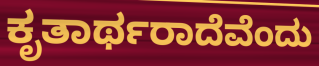
ಕೃತಾರ್ಥರಾದೆವೆಂದು